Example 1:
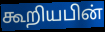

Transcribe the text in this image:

கூறியபின்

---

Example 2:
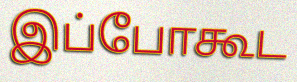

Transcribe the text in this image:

இப்போகூட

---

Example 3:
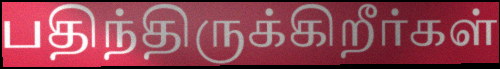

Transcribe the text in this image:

பதிந்திருக்கிறீர்கள்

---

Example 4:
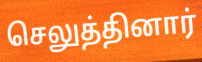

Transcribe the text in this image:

செலுத்தினார்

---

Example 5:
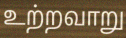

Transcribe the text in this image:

உற்றவாறு